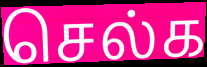
செல்க